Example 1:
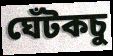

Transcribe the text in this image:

ঘেঁটকচু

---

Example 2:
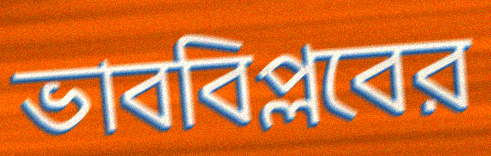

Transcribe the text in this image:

ভাববিপ্লবের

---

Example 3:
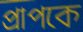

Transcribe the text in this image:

প্রাপকে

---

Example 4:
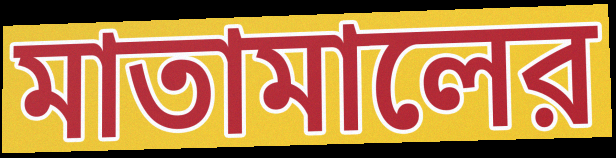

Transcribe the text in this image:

মাতামালের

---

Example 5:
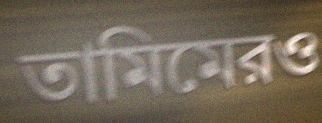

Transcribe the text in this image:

তামিমেরও